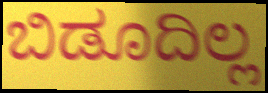
ಬಿಡೂದಿಲ್ಲ